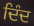
ਦਿੰਦ